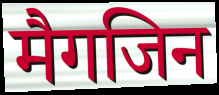
मैगजिन